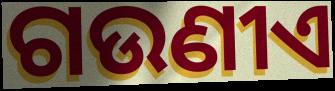
ଗଉଣୀଏ